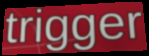
trigger